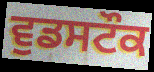
ਵੁਡਸਟੌਕ